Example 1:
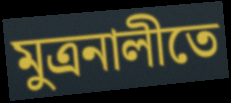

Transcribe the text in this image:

মুত্রনালীতে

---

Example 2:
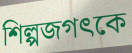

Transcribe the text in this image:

শিল্পজগৎকে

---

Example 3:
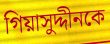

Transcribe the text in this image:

গিয়াসুদ্দীনকে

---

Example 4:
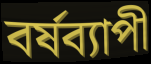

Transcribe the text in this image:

বর্ষব্যাপী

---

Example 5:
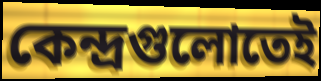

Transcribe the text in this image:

কেন্দ্রগুলোতেই